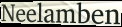
Neelamben